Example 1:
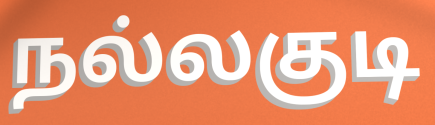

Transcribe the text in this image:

நல்லகுடி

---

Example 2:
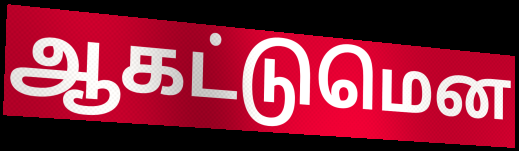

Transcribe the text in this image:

ஆகட்டுமென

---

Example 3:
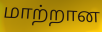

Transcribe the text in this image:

மாற்றான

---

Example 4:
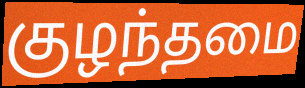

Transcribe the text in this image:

குழந்தமை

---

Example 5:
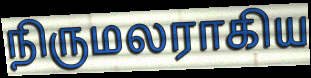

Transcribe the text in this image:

நிருமலராகிய